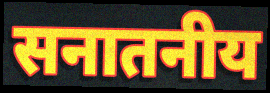
सनातनीय